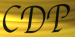
CDP